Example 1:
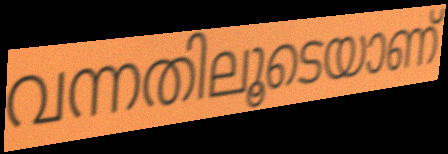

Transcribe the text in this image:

വന്നതിലൂടെയാണ്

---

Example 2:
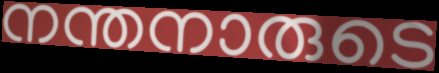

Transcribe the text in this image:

നന്തനാരുടെ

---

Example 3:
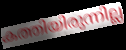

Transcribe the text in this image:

കത്തിയിരുന്നില്ല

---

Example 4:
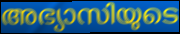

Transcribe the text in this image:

അഭ്യാസിയുടെ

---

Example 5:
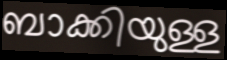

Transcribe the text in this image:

ബാക്കിയുള്ള